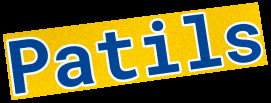
Patils